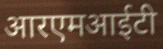
आरएमआईटी